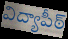
విద్యాపీఠ్